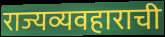
राज्यव्यवहाराची